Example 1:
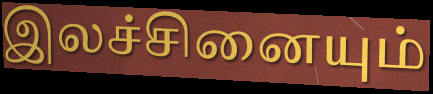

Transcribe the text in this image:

இலச்சினையும்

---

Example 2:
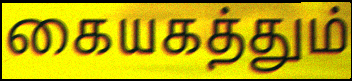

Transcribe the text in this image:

கையகத்தும்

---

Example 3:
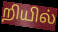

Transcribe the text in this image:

றியில்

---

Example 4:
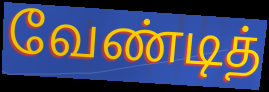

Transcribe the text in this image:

வேண்டித்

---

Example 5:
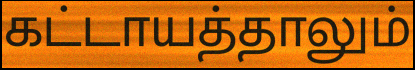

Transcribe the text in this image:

கட்டாயத்தாலும்